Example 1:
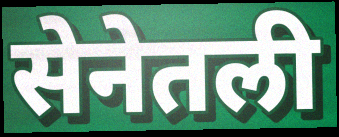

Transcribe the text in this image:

सेनेतली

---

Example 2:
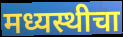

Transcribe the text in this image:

मध्यस्थीचा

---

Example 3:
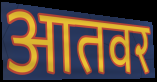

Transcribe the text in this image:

आतवर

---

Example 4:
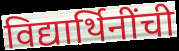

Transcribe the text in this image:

विद्यार्थिनींची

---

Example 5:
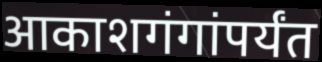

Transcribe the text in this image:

आकाशगंगांपर्यंत